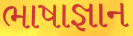
ભાષાજ્ઞાન